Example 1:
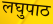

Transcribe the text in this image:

लघुपाठ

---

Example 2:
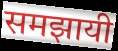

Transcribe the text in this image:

समझायी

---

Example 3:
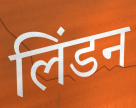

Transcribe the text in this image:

लिंडन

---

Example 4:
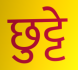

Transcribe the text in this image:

छुट्टे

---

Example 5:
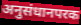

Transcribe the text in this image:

अनुसंधानपरक